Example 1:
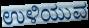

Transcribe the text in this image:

ಉಳಿಯುವ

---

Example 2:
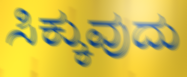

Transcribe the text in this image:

ಸಿಕ್ಕುವುದು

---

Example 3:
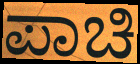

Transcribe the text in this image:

ಪಾಚಿ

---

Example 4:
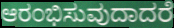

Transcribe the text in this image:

ಆರಂಭಿಸುವುದಾದರೆ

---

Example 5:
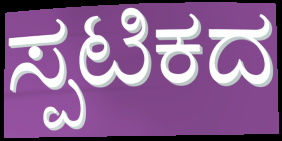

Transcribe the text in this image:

ಸ್ಪಟಿಕದ